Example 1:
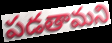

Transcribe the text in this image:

పడతామని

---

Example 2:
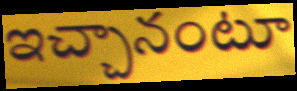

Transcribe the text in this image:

ఇచ్చానంటూ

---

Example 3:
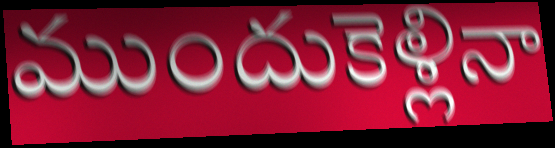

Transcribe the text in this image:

ముందుకెళ్లినా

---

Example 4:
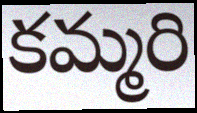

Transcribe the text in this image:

కమ్మరి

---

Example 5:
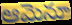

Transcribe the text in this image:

ఆమెనూ